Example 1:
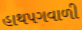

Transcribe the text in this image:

હાથપગવાળી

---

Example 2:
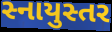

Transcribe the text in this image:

સ્નાયુસ્તર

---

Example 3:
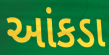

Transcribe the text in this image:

આંકડા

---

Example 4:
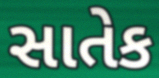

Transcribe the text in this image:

સાતેક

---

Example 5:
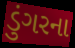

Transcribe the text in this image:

ડુંગરના